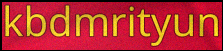
kbdmrityun